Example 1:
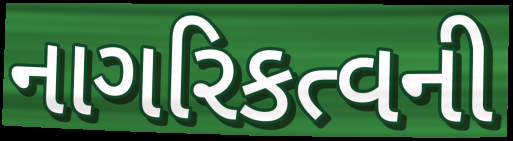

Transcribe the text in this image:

નાગરિકત્વની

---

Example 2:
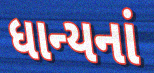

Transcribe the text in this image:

ધાન્યનાં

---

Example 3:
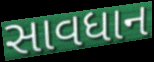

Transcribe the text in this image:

સાવધાન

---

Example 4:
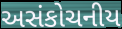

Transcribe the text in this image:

અસંકોચનીય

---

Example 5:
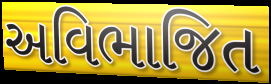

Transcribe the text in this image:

અવિભાજિત